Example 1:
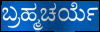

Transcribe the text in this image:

ಬ್ರಹ್ಮಚರ್ಯೆ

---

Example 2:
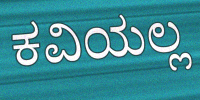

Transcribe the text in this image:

ಕವಿಯಲ್ಲ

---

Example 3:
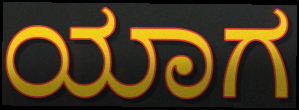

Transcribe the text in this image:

ಯಾಗ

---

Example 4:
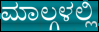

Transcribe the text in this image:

ಮಾಲ್ಗಳಲ್ಲಿ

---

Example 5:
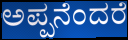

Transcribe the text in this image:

ಅಪ್ಪನೆಂದರೆ